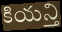
కియన్తి